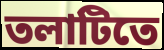
তলাটিতে